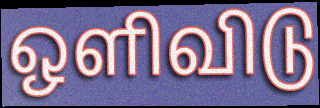
ஒளிவிடு